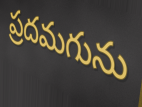
ప్రదమగును